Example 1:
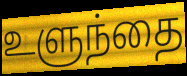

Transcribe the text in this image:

உளுந்தை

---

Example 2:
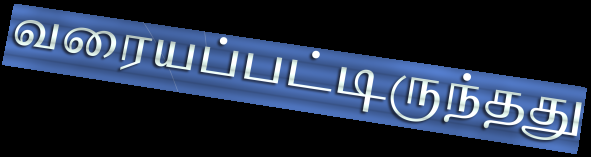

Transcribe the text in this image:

வரையப்பட்டிருந்தது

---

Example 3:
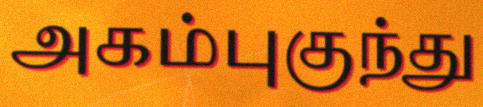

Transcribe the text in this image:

அகம்புகுந்து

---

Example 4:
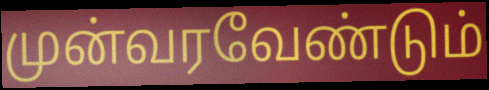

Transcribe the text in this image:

முன்வரவேண்டும்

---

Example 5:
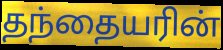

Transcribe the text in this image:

தந்தையரின்